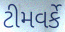
ટીમવર્કે